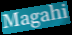
Magahi